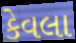
કેવલા